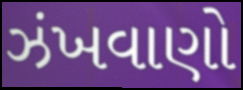
ઝંખવાણો